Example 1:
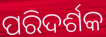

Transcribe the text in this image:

ପରିଦର୍ଶକ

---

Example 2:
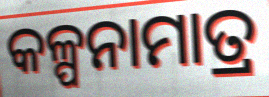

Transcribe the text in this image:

କଳ୍ପନାମାତ୍ର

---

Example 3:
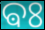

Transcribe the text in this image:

ଵଃ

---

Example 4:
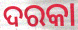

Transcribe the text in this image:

ଦରକା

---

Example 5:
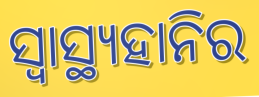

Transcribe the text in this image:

ସ୍ଵାସ୍ଥ୍ୟହାନିର